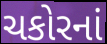
ચકોરનાં